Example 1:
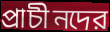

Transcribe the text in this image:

প্রাচীনদের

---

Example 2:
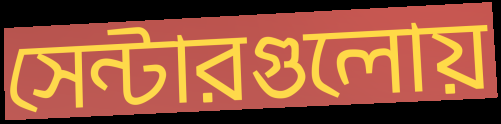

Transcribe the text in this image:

সেন্টারগুলোয়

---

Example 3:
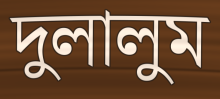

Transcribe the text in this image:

দুলালুম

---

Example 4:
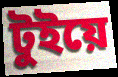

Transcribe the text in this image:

টুইয়ে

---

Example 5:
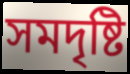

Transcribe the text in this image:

সমদৃষ্টি